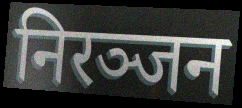
निरञ्जन